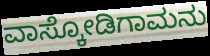
ವಾಸ್ಕೋಡಿಗಾಮನು